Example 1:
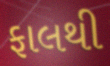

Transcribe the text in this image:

ફાલથી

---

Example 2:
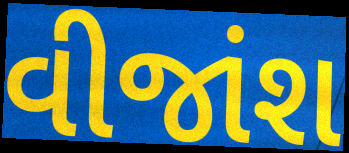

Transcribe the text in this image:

વીજાંશ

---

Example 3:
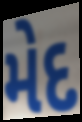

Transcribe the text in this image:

મેદ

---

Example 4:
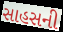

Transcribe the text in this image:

સાહસની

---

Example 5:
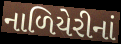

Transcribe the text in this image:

નાળિયેરીનાં